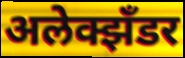
अलेक्झँडर